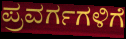
ಪ್ರವರ್ಗಗಳಿಗೆ